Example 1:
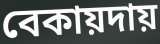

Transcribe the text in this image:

বেকায়দায়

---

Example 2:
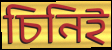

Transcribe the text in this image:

চিনিই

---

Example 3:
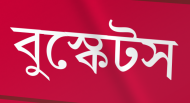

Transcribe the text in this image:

বুস্কেটস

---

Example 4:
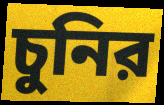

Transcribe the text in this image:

চুনির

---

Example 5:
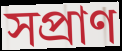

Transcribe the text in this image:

সপ্রাণ